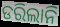
ଡରିଲାନି